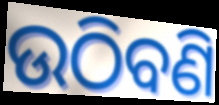
ଉଠିବଣି